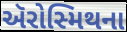
ઍરોસ્મિથના